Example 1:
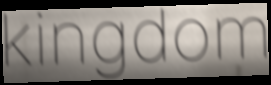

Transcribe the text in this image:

kingdom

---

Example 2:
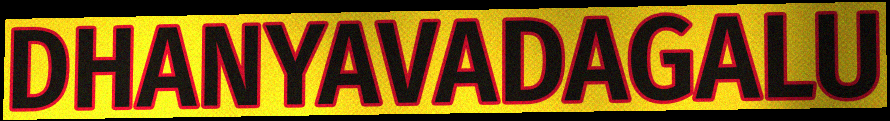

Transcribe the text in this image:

DHANYAVADAGALU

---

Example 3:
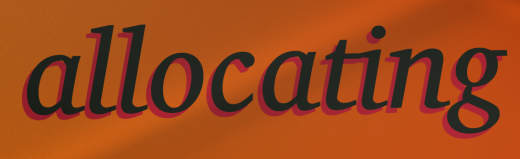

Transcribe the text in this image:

allocating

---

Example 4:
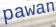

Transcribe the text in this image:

pawan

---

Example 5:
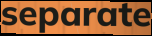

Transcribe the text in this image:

separate